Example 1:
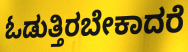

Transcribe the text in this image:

ಓಡುತ್ತಿರಬೇಕಾದರೆ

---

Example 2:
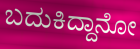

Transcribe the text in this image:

ಬದುಕಿದ್ದಾನೋ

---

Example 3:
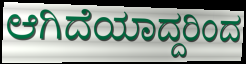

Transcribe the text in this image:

ಆಗಿದೆಯಾದ್ದರಿಂದ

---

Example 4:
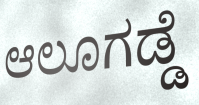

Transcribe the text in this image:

ಆಲೂಗಡ್ಡೆ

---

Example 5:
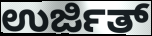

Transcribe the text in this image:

ಉರ್ಜಿತ್